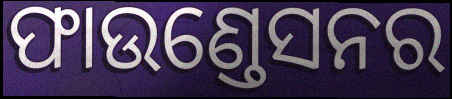
ଫାଉଣ୍ଡେସନର